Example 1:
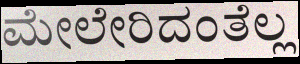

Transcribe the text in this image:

ಮೇಲೇರಿದಂತೆಲ್ಲ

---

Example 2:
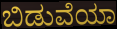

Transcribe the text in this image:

ಬಿಡುವೆಯಾ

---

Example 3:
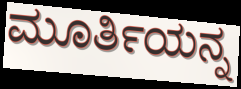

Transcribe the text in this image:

ಮೂರ್ತಿಯನ್ನ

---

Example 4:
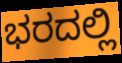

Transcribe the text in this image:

ಭರದಲ್ಲಿ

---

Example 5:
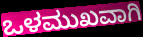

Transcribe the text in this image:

ಒಳಮುಖವಾಗಿ